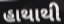
હાથાથી